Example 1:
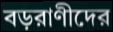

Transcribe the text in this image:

বড়রাণীদের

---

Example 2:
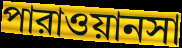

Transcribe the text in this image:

পারাওয়ানসা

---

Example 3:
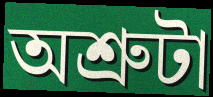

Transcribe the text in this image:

অশ্রুটা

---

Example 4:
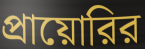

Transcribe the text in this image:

প্রায়োরির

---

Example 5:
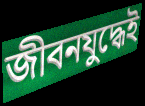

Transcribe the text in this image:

জীবনযুদ্ধেই